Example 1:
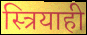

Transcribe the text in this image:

स्त्रियाही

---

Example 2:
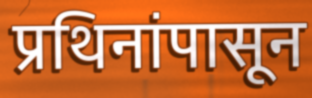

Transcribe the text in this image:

प्रथिनांपासून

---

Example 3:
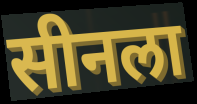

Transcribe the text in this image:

सीनला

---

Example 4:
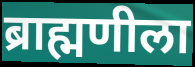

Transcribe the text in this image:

ब्राह्मणीला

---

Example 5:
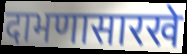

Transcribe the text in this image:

दाभणासारखे